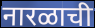
नारळाची